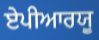
ਏਪੀਆਰਯੂ